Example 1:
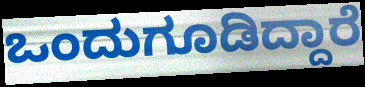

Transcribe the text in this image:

ಒಂದುಗೂಡಿದ್ದಾರೆ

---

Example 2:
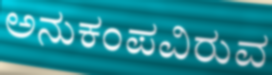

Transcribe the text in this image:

ಅನುಕಂಪವಿರುವ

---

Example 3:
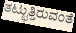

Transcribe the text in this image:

ತಟ್ಟುತ್ತಿರುವಂತೆ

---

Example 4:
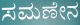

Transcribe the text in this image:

ಸಮಣೇನ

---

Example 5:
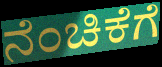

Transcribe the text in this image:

ನೆಂಚಿಕೆಗೆ